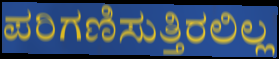
ಪರಿಗಣಿಸುತ್ತಿರಲಿಲ್ಲ